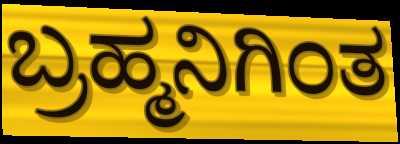
ಬ್ರಹ್ಮನಿಗಿಂತ